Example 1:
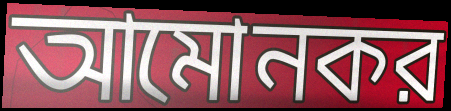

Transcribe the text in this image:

আমোনকর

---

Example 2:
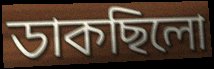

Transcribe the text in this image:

ডাকছিলো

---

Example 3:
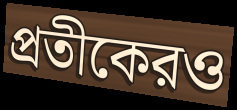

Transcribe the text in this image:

প্রতীকেরও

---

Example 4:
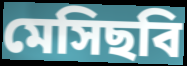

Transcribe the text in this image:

মেসিছবি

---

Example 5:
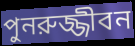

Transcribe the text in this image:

পুনরুজ্জীবন